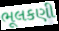
ભૂલકણી